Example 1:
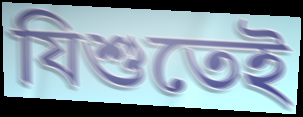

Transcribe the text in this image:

যিশুতেই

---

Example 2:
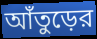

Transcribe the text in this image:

আঁতুড়ের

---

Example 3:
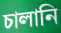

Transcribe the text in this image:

চালানি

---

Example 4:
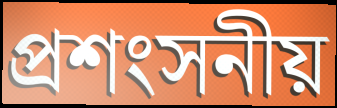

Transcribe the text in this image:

প্রশংসনীয়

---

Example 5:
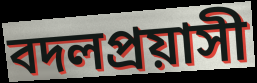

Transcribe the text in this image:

বদলপ্রয়াসী